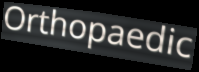
Orthopaedic